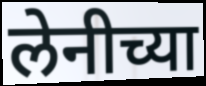
लेनीच्या